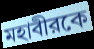
মহাবীরকে